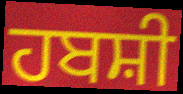
ਹਬਸ਼ੀ